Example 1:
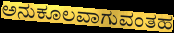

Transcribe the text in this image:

ಅನುಕೂಲವಾಗುವಂತಹ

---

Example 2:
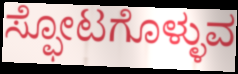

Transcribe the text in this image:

ಸ್ಫೋಟಗೊಳ್ಳುವ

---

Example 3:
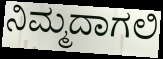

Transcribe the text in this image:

ನಿಮ್ಮದಾಗಲಿ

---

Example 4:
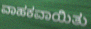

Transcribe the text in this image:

ವಾಹಕವಾಯಿತು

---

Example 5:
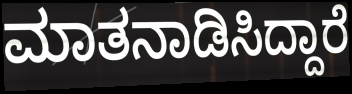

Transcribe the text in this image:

ಮಾತನಾಡಿಸಿದ್ದಾರೆ